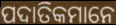
ପଦାତିକମାନେ